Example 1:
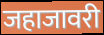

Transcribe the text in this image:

जहाजावरी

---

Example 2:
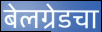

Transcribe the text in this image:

बेलग्रेडचा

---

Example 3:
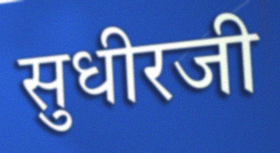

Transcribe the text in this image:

सुधीरजी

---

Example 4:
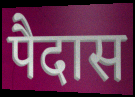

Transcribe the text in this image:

पैदास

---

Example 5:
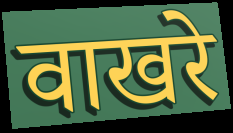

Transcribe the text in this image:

वाखरे